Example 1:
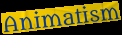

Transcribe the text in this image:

Animatism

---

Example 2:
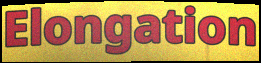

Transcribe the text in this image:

Elongation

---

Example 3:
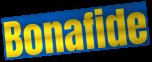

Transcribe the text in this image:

Bonafide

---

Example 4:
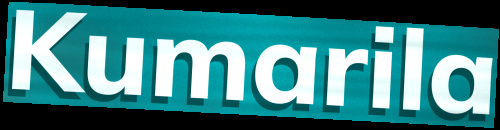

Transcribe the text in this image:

Kumarila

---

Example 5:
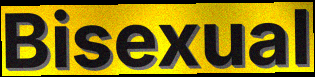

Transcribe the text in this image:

Bisexual